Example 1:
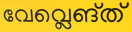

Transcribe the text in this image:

വേവ്ലെങ്ത്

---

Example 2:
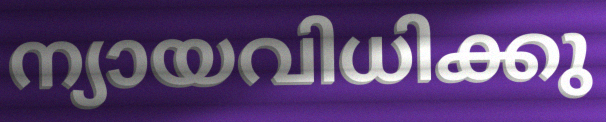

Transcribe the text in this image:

ന്യായവിധിക്കു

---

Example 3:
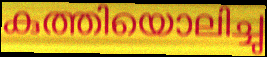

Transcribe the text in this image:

കുത്തിയൊലിച്ചു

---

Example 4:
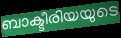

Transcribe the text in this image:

ബാക്ടീരിയയുടെ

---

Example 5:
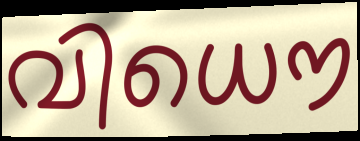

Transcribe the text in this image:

വിധൌ